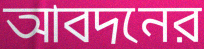
আবদনের